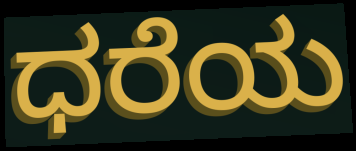
ಧರೆಯ